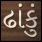
ઢાંકું